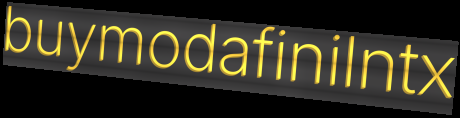
buymodafinilntx